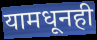
यामधूनही